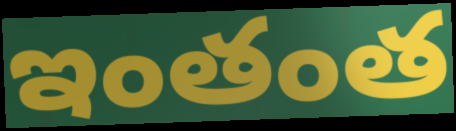
ఇంతంత